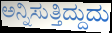
ಅನ್ನಿಸುತ್ತಿದ್ದುದು